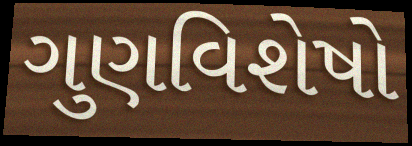
ગુણવિશેષો